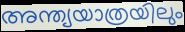
അന്ത്യയാത്രയിലും